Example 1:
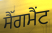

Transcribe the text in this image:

ਸੈੱਗਮੈਂਟ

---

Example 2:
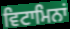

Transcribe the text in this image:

ਵਿਟਾਮਿਨਾਂ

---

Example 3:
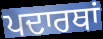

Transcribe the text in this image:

ਪਦਾਰਥਾਂ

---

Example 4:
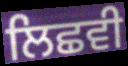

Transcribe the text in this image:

ਲਿਛਵੀ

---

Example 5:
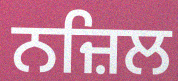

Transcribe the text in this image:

ਨਜ਼ਿਲ